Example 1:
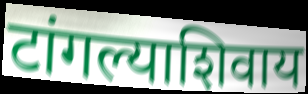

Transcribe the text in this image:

टांगल्याशिवाय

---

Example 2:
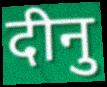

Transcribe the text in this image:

दीनु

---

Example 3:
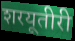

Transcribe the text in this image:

शरयूतीरी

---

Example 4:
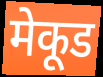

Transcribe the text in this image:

मेकूड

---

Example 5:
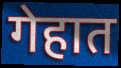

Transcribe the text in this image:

गेहात